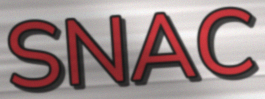
SNAC